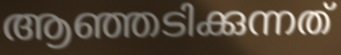
ആഞ്ഞടിക്കുന്നത്